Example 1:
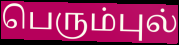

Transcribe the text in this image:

பெரும்புல்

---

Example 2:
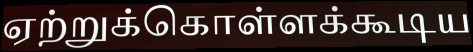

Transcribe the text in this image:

ஏற்றுக்கொள்ளக்கூடிய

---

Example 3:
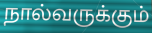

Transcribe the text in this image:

நால்வருக்கும்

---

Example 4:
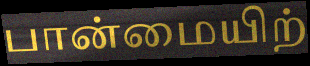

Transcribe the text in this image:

பான்மையிற்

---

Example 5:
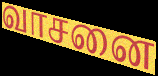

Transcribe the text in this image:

வாசனை